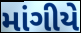
માંગીયે